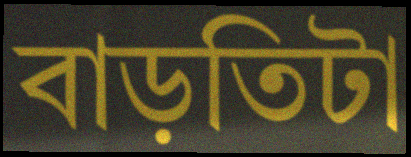
বাড়তিটা